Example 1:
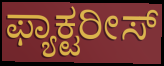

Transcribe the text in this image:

ಫ್ಯಾಕ್ಟರೀಸ್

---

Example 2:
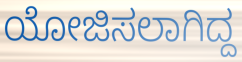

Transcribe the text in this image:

ಯೋಜಿಸಲಾಗಿದ್ದ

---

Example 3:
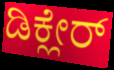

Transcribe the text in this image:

ಡಿಕ್ಲೇರ್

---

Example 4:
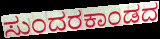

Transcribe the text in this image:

ಸುಂದರಕಾಂಡದ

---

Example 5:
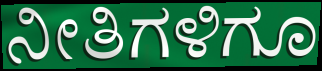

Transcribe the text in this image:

ನೀತಿಗಳಿಗೂ